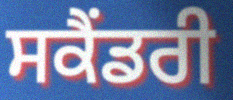
ਸਕੈਂਡਰੀ